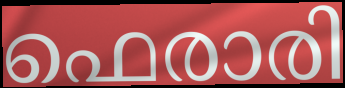
ഫെരാരി